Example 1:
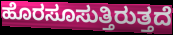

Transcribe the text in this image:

ಹೊರಸೂಸುತ್ತಿರುತ್ತದೆ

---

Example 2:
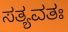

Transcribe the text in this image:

ಸತ್ಯವತಃ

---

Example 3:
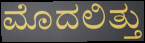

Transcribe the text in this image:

ಮೊದಲಿತ್ತು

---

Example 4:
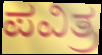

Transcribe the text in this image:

ಪವಿತ್ರ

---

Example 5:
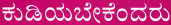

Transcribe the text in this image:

ಕುಡಿಯಬೇಕೆಂದರು